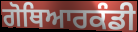
ਗੋਥਿਆਰਕੰਡੀ